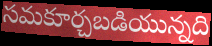
సమకూర్చబడియున్నది